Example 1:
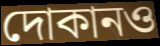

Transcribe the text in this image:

দোকানও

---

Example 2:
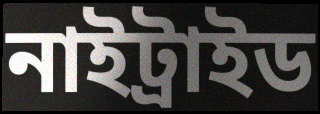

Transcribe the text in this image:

নাইট্রাইড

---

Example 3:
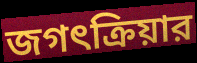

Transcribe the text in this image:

জগৎক্রিয়ার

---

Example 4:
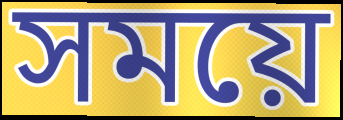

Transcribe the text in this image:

সময়ে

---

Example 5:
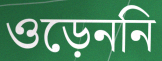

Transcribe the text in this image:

ওড়েননি